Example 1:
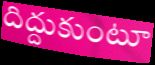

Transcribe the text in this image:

దిద్దుకుంటూ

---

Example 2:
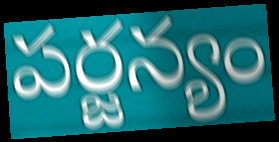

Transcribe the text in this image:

పర్జన్యం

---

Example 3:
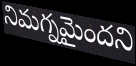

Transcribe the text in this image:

నిమగ్నమైందని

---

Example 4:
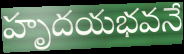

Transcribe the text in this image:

హృదయభవనే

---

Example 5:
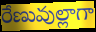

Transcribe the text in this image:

రేణువుల్లాగా